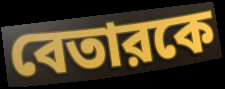
বেতারকে